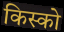
किस्को